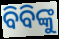
ବିବିଙ୍କୁ